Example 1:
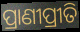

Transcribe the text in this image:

ପ୍ରାଣୀପ୍ରୀତି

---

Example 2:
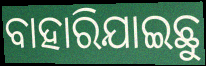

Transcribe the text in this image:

ବାହାରିଯାଇଛୁ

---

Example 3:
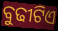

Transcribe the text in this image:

ବୁଢୀଟିଏ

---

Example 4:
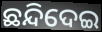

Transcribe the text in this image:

ଛନ୍ଦିଦେଇ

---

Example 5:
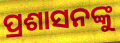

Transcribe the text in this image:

ପ୍ରଶାସନଙ୍କୁ